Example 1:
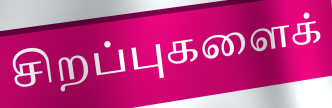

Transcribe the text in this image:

சிறப்புகளைக்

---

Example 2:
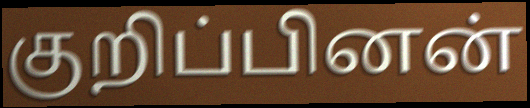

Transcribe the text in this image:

குறிப்பினன்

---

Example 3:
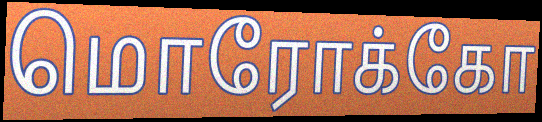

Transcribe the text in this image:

மொரோக்கோ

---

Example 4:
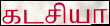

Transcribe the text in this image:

கடசியா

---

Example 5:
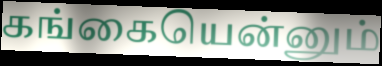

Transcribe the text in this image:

கங்கையென்னும்